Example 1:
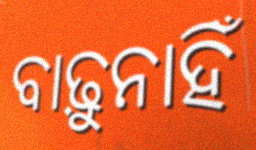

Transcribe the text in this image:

ବାଢ଼ୁନାହିଁ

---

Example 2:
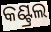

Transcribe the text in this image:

କଣ୍ଟ୍ରଲ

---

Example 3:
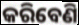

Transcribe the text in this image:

କରିବେଣି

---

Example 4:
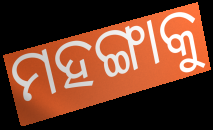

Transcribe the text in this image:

ମହଙ୍ଗାକୁ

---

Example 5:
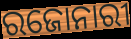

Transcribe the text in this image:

ରଜୋନାରୀ